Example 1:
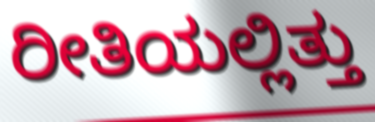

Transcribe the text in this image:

ರೀತಿಯಲ್ಲಿತ್ತು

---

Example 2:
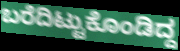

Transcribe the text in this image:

ಬರೆದಿಟ್ಟುಕೊಂಡಿದ್ದ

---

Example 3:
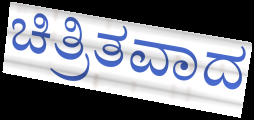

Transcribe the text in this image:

ಚಿತ್ರಿತವಾದ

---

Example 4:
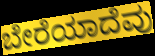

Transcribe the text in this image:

ಬೇರೆಯಾದೆವು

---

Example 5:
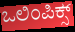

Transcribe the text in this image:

ಒಲಿಂಪಿಕ್ಸ್